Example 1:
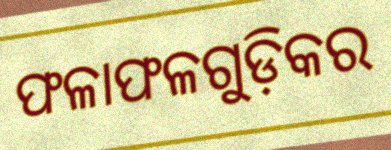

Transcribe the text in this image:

ଫଳାଫଳଗୁଡ଼ିକର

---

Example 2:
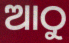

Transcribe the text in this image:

ଆଠୁ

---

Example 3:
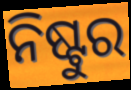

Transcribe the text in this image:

ନିଷ୍ଟୁର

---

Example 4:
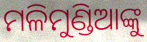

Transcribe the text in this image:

ମଳିମୁଣ୍ଡିଆଙ୍କୁ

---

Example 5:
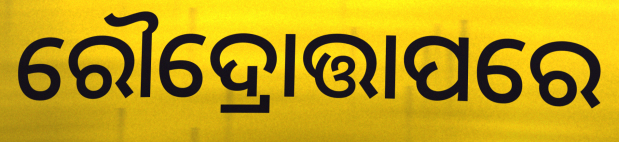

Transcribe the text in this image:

ରୌଦ୍ରୋତ୍ତାପରେ